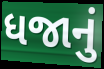
ધજાનું